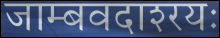
जाम्बवदाश्रयः